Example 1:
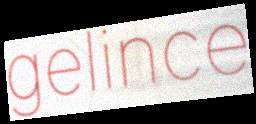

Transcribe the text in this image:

gelince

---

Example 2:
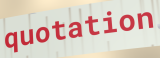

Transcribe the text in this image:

quotation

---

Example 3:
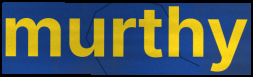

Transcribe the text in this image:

murthy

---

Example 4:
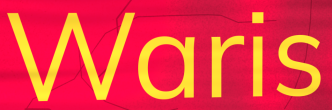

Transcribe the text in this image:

Waris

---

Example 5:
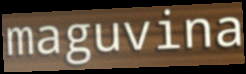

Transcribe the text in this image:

maguvina